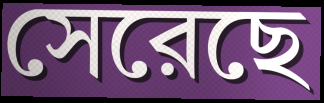
সেরেছে